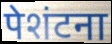
पेशंटना